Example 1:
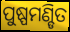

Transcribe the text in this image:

ପୁଷ୍ପମଣ୍ଡିତ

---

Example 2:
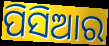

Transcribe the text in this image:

ପିସିଆର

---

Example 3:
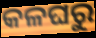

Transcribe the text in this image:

କଳଘରୁ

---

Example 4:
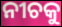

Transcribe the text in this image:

ନୀଚକୁ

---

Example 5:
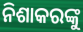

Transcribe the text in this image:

ନିଶାକରଙ୍କୁ